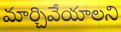
మార్చివేయాలని